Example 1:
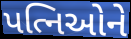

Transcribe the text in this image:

પત્નિઓને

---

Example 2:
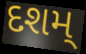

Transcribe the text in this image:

દશમ્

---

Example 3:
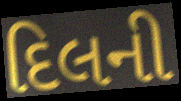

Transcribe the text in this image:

દિલની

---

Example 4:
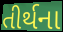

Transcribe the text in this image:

તીર્થના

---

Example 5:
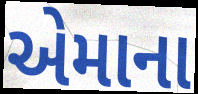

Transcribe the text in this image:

એમાના